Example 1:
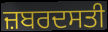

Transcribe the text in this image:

ਜ਼ਬਰਦਸਤੀ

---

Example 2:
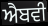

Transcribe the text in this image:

ਐਬਵੀ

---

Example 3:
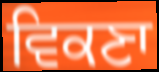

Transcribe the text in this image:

ਵਿਕਣਾ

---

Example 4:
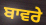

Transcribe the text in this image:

ਬਾਵਰੇ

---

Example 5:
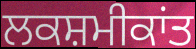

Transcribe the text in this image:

ਲਕਸ਼ਮੀਕਾਂਤ